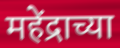
महेंद्राच्या